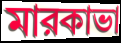
মারকাভা